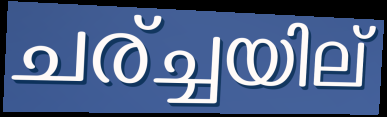
ചര്ച്ചയില്